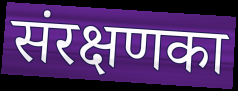
संरक्षणका